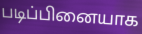
படிப்பினையாக